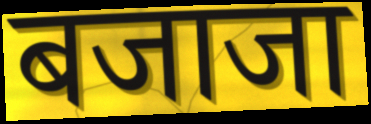
बजाजा